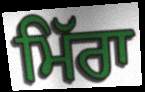
ਮਿੱਰਾ